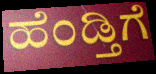
ಹೆಂಡ್ತಿಗೆ